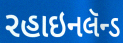
રહાઇનલૅન્ડ